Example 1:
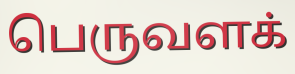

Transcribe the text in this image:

பெருவளக்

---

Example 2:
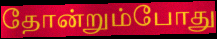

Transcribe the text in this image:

தோன்றும்போது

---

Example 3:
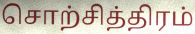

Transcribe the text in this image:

சொற்சித்திரம்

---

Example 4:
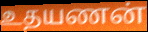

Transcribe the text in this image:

உதயணன்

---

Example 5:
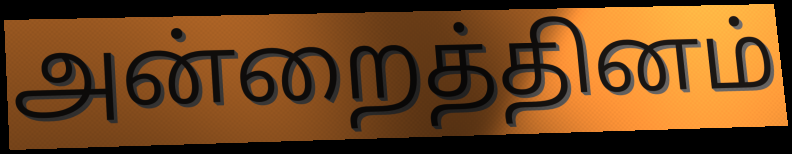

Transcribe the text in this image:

அன்றைத்தினம்